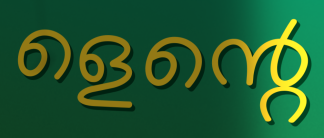
ളെന്റെ